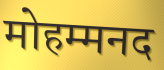
मोहम्मनद